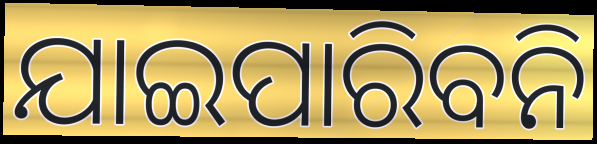
ଯାଇପାରିବନି